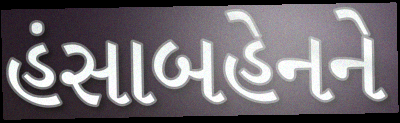
હંસાબહેનને